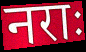
नराः